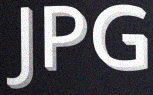
JPG